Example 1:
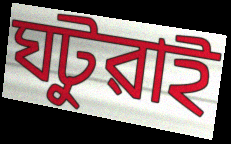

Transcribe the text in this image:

ঘটুৱাই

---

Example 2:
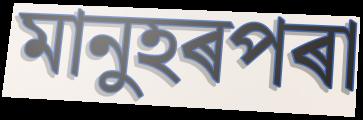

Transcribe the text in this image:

মানুহৰপৰা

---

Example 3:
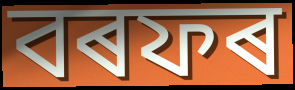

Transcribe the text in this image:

বৰফৰ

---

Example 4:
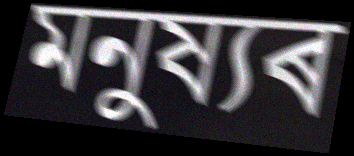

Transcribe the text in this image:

মনুষ্যৰ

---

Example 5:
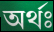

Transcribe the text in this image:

অৰ্থঃ